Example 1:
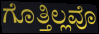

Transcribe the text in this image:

ಗೊತ್ತಿಲ್ಲವೊ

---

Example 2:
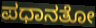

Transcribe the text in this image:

ಪಧಾನತೋ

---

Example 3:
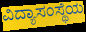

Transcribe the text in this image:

ವಿದ್ಯಾಸಂಸ್ಥೆಯ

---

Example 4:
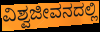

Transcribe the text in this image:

ವಿಶ್ವಜೀವನದಲ್ಲಿ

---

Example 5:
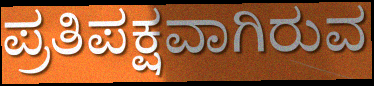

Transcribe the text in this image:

ಪ್ರತಿಪಕ್ಷವಾಗಿರುವ